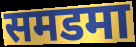
समडमा